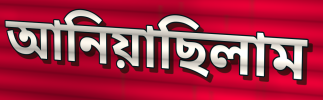
আনিয়াছিলাম